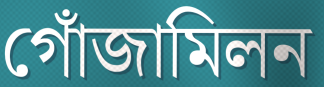
গোঁজামিলন